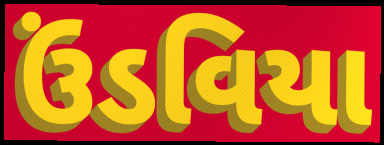
ઉંડવિયા